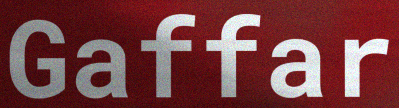
Gaffar